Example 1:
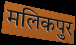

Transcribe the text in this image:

मलिकपुर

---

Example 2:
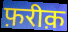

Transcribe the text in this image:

फ़रीक़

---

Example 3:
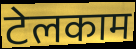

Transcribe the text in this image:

टेलकाम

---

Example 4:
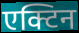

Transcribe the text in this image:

एक्टिन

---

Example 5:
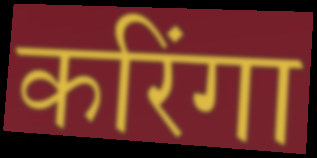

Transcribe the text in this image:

करिंगा